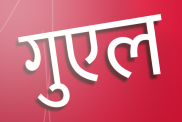
गुएल